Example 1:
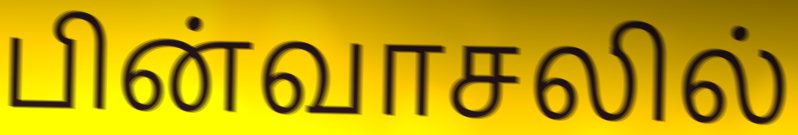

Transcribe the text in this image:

பின்வாசலில்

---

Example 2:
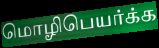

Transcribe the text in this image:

மொழிபெயர்க்க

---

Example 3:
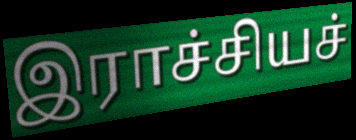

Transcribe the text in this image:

இராச்சியச்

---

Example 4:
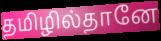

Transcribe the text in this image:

தமிழில்தானே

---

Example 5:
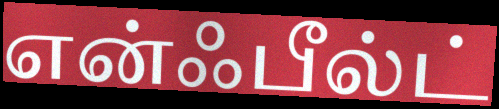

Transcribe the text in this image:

என்ஃபீல்ட்